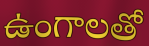
ఉంగాలతో